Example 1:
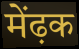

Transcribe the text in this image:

मेंढ़क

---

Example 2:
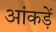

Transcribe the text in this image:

आंकड़ें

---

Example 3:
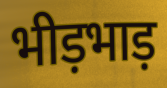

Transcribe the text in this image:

भीड़भाड़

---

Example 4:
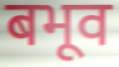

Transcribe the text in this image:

बभूव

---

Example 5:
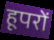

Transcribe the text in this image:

हूपरों